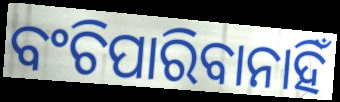
ବଂଚିପାରିବାନାହିଁ